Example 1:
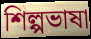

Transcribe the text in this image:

শিল্পভাষা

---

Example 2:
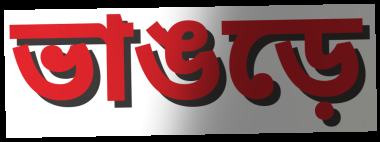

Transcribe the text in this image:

ভাঙড়ে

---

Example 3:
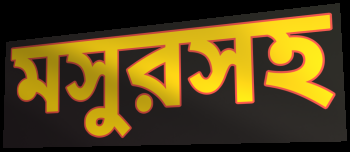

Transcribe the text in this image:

মসুরসহ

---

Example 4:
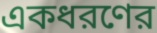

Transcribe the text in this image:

একধরণের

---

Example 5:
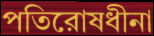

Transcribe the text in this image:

পতিরোষধীনা